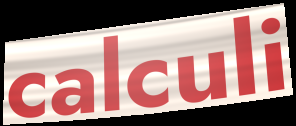
calculi